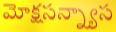
మోక్షసన్న్యాస